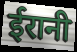
ईरानी